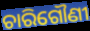
ଚାରିଗୌଣୀ